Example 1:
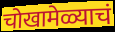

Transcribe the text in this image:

चोखामेळ्याचं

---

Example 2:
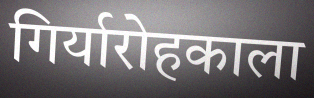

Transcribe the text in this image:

गिर्यारोहकाला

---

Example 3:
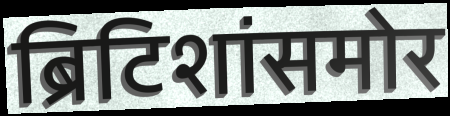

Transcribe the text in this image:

ब्रिटिशांसमोर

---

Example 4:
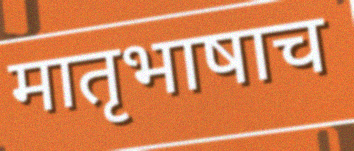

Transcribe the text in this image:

मातृभाषाच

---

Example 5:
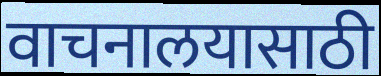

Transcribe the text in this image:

वाचनालयासाठी